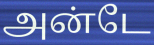
அன்டே